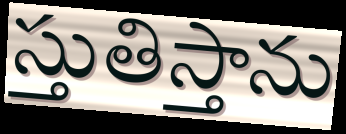
స్తుతిస్తాను